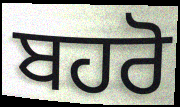
ਬਹਰੋ